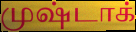
முஷ்டாக்